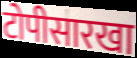
टोपीसारखा